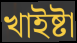
খাইষ্টা